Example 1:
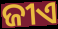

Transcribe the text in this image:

ଜୀଏ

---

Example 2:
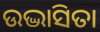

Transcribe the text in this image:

ଉଦ୍ଭାସିତା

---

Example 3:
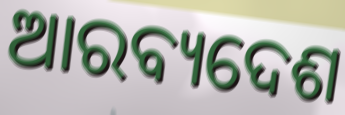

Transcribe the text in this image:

ଆରବ୍ୟଦେଶ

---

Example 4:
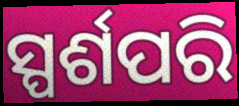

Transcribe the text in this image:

ସ୍ପର୍ଶପରି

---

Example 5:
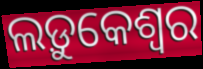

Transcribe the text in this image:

ଲଡ଼ୁକେଶ୍ୱର